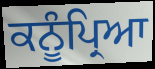
ਕਨੂੰਪ੍ਰਿਆ